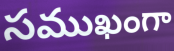
సముఖంగా